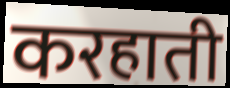
करहाती